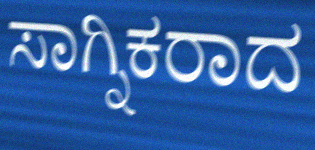
ಸಾಗ್ನಿಕರಾದ